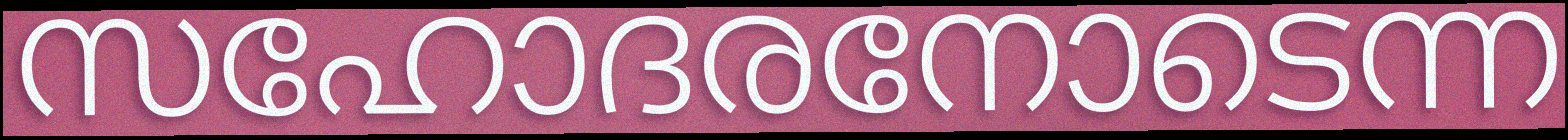
സഹോദരനോടെന്ന